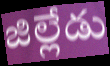
జిల్లేడు